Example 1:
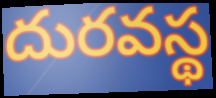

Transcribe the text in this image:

దురవస్థ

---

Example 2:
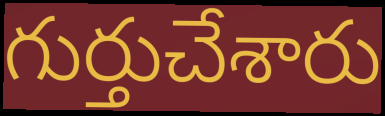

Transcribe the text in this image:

గుర్తుచేశారు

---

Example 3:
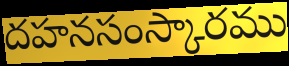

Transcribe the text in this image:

దహనసంస్కారము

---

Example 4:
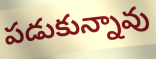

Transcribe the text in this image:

పడుకున్నావు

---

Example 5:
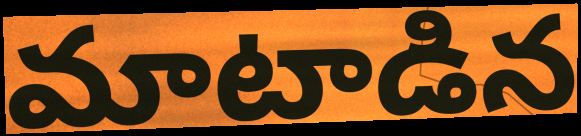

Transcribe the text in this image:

మాటాడిన